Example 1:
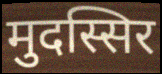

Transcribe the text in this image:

मुदस्सिर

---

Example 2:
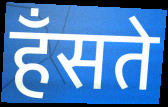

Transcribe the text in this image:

हँसते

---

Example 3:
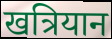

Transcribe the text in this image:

खत्रियान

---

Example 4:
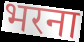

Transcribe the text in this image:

भरना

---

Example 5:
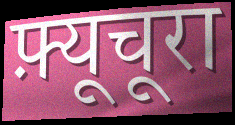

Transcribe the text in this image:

फ़्यूचूरा